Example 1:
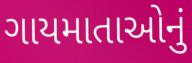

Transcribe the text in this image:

ગાયમાતાઓનું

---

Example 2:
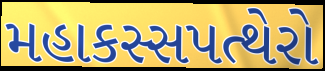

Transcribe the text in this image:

મહાકસ્સપત્થેરો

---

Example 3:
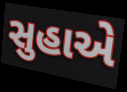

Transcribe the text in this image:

સુહાએ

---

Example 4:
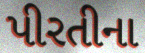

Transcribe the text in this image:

પીરતીના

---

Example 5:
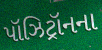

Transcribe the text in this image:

પૉઝિટ્રૉનના